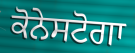
ਕੋਨੇਸਟੋਗਾ